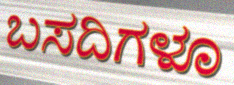
ಬಸದಿಗಳೂ